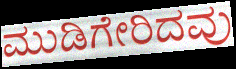
ಮುಡಿಗೇರಿದವು